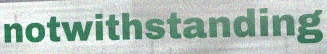
notwithstanding